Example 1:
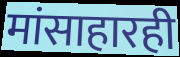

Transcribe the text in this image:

मांसाहारही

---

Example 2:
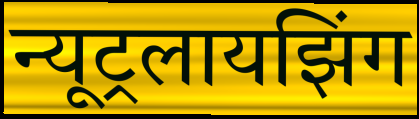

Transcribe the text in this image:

न्यूट्रलायझिंग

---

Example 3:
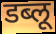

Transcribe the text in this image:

डब्लू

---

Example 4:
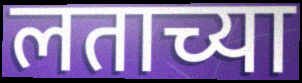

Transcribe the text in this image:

लताच्या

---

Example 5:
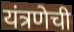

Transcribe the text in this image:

यंत्रणेची